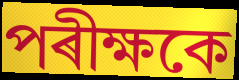
পৰীক্ষকে